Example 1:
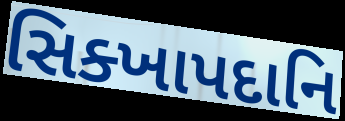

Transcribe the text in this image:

સિક્ખાપદાનિ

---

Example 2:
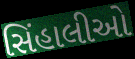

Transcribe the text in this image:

સિંહાલીઓ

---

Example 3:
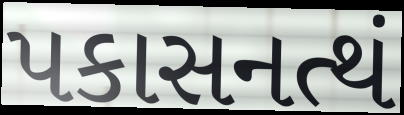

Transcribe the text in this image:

પકાસનત્થં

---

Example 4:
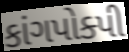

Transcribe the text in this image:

કાંગપોક્પી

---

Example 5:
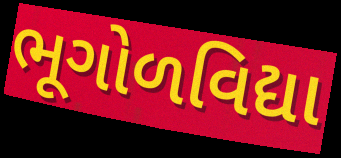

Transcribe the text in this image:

ભૂગોળવિદ્યા